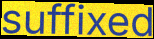
suffixed